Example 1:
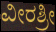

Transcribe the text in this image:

ವೀರಶ್ರೀ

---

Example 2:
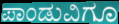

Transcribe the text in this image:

ಪಾಂಡುವಿಗೂ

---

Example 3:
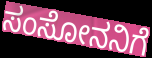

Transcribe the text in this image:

ಸಂಸೋನನಿಗೆ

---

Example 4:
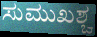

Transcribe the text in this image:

ಸುಮುಖಶ್ಚ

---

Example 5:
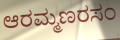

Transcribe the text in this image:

ಆರಮ್ಮಣರಸಂ